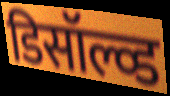
डिसॉल्व्ड